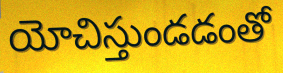
యోచిస్తుండడంతో